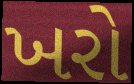
ખરો